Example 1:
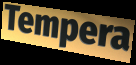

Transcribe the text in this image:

Tempera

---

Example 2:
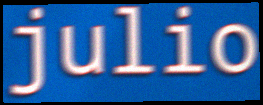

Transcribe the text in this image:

julio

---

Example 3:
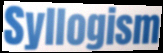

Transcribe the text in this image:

Syllogism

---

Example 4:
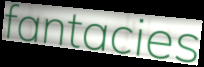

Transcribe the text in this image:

fantacies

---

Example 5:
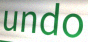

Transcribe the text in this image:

undo